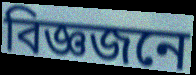
বিজ্ঞজনে